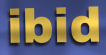
ibid